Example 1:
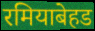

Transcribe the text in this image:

रमियाबेहड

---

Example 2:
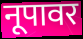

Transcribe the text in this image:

नूपावर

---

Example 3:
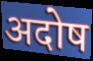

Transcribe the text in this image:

अदोष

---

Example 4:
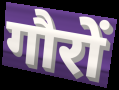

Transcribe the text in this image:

गौरों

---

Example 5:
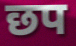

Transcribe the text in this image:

छप